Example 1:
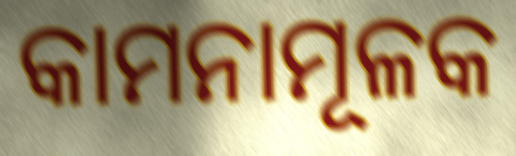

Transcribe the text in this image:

କାମନାମୂଳକ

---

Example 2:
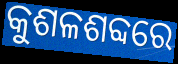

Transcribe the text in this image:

କୁଶଳଶବ୍ଦରେ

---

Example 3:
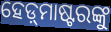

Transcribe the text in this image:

ହେଡ଼୍‌ମାଷ୍ଟରଙ୍କୁ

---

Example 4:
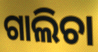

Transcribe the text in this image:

ଗାଲିଚା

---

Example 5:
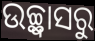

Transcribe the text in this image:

ଉଚ୍ଛ୍ୱାସରୁ